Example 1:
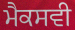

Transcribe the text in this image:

ਮੈਕਸਵੀ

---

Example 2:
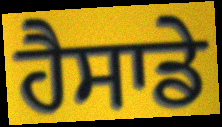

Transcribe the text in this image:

ਹੈਸਾਡੇ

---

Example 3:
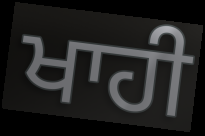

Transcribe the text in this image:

ਖਾਹੀ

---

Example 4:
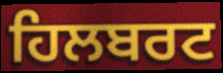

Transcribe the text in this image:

ਹਿਲਬਰਟ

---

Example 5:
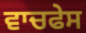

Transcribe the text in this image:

ਵਾਚਫੇਸ